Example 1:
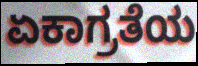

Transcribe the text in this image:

ಏಕಾಗ್ರತೆಯ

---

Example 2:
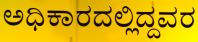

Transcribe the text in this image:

ಅಧಿಕಾರದಲ್ಲಿದ್ದವರ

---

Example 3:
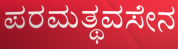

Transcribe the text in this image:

ಪರಮತ್ಥವಸೇನ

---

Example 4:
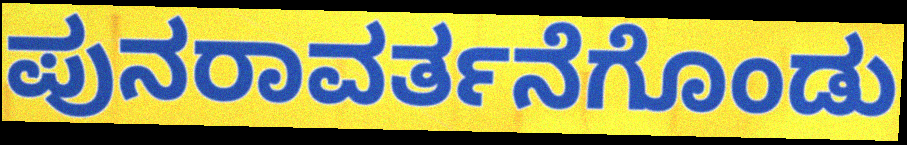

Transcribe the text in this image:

ಪುನರಾವರ್ತನೆಗೊಂಡು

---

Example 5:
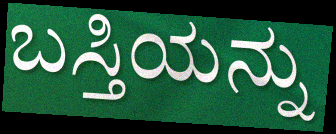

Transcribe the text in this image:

ಬಸ್ತಿಯನ್ನು